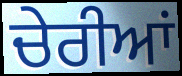
ਚੇਰੀਆਂ